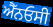
ਐੱਨਓਸੀ